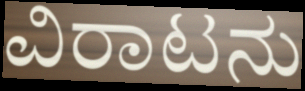
ವಿರಾಟನು